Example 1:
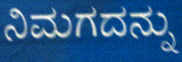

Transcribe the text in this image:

ನಿಮಗದನ್ನು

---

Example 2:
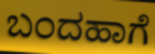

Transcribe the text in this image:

ಬಂದಹಾಗೆ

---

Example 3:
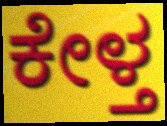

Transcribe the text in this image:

ಕೇಳ್ತ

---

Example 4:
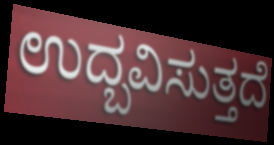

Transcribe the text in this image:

ಉದ್ಬವಿಸುತ್ತದೆ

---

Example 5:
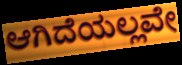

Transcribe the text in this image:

ಆಗಿದೆಯಲ್ಲವೇ